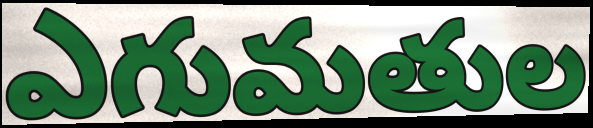
ఎగుమతుల